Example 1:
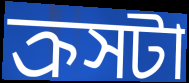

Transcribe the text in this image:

ক্রসটা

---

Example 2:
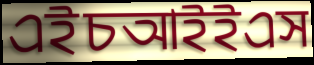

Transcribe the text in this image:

এইচআইইএস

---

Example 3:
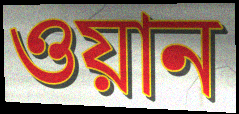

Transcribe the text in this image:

ওয়ান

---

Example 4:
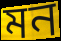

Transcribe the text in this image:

মন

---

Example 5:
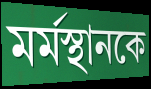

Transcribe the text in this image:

মর্মস্থানকে